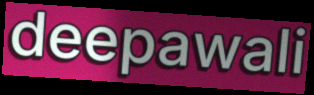
deepawali